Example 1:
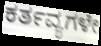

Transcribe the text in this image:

ಕರ್ತವ್ಯಗಳೇ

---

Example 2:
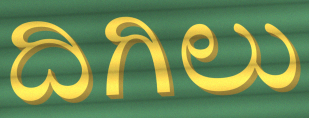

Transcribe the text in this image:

ದಿಗಿಲು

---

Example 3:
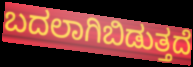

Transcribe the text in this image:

ಬದಲಾಗಿಬಿಡುತ್ತದೆ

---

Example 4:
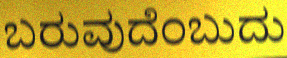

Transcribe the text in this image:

ಬರುವುದೆಂಬುದು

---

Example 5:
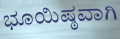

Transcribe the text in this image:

ಭೂಯಿಷ್ಠವಾಗಿ